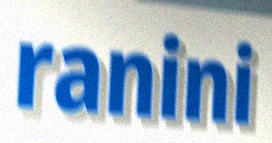
ranini